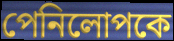
পেনিলোপকে